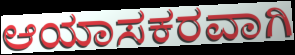
ಆಯಾಸಕರವಾಗಿ